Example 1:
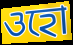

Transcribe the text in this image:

ওহো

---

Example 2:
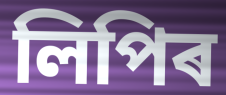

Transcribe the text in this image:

লিপিৰ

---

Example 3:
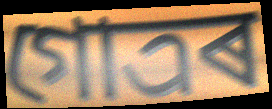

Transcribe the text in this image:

গোত্ৰৰ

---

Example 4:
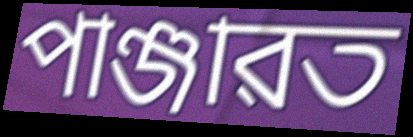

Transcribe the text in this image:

পাঞ্জাৱত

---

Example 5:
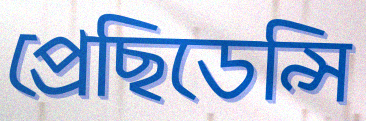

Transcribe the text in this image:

প্ৰেছিডেন্সি